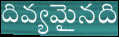
దివ్యమైనది